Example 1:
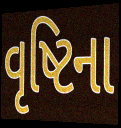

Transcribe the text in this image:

વૃષ્ટિના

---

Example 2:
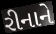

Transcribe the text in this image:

રીનાને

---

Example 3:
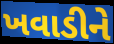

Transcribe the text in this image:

ખવાડીને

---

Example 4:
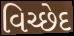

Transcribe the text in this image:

વિચ્છેદ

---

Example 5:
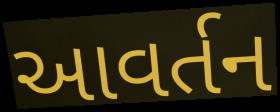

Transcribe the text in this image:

આવર્તન